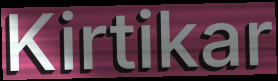
Kirtikar